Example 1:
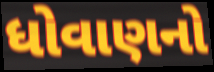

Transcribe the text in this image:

ધોવાણનો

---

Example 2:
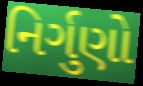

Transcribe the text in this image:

નિર્ગુણો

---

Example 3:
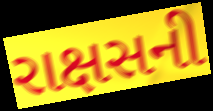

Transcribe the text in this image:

રાક્ષસની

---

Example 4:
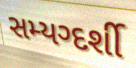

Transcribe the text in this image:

સમ્યગ્દર્શી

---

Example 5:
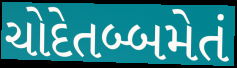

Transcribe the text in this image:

ચોદેતબ્બમેતં